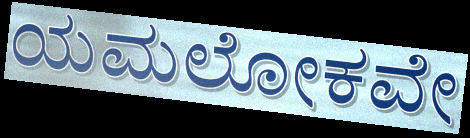
ಯಮಲೋಕವೇ